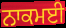
ਨਾਕਮਈ